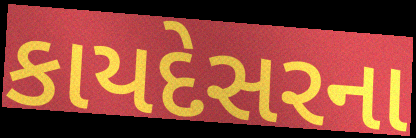
કાયદેસરના